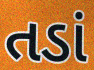
તડાં